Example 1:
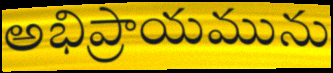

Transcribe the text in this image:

అభిప్రాయమును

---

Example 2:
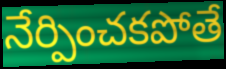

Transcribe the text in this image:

నేర్పించకపోతే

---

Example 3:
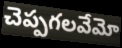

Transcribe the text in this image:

చెప్పగలవేమో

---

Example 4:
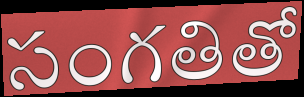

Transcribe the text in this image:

సంగతితో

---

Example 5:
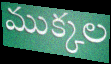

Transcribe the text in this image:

ముక్కల